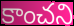
కాంచని